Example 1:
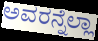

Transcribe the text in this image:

ಅವರನ್ನೆಲ್ಲಾ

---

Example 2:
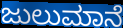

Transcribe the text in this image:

ಜುಲುಮಾನೆ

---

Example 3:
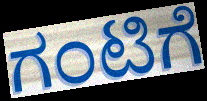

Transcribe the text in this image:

ಗಂಟಿಗೆ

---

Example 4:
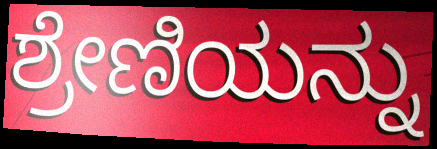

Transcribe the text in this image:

ಶ್ರೇಣಿಯನ್ನು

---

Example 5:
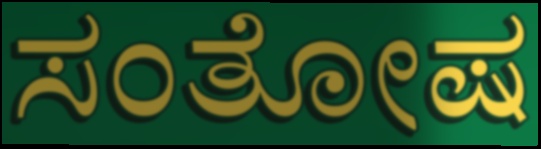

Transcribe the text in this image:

ಸಂತೋಷ